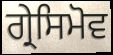
ਗ੍ਰੇਸਿਮੋਵ